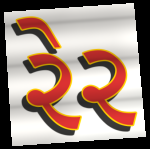
રેર